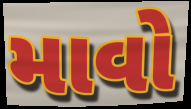
માવો